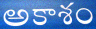
అకాశం